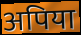
अपिया